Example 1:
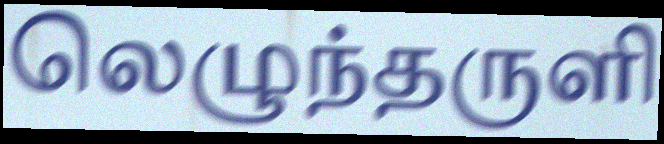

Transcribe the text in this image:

லெழுந்தருளி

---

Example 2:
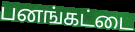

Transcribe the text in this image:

பனங்கட்டை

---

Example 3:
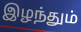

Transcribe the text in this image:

இழந்தும்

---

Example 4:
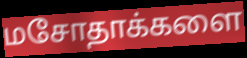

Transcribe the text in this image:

மசோதாக்களை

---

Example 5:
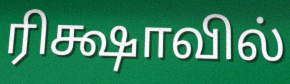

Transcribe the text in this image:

ரிக்ஷாவில்